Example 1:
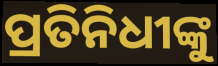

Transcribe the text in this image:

ପ୍ରତିନିଧୀଙ୍କୁ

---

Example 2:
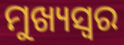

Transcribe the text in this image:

ମୁଖ୍ୟସ୍ୱର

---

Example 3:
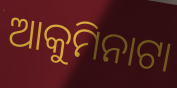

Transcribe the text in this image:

ଆକୁମିନାଟା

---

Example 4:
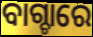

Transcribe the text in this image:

ବାଗ୍ଚାରେ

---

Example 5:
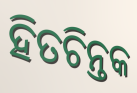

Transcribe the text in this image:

ହିତଚିନ୍ତକ